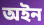
অইন